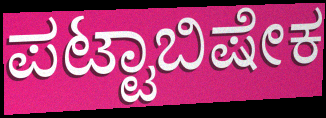
ಪಟ್ಟಾಬಿಷೇಕ